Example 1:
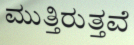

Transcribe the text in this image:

ಮುತ್ತಿರುತ್ತವೆ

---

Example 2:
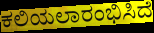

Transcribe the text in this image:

ಕಲಿಯಲಾರಂಭಿಸಿದೆ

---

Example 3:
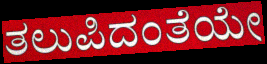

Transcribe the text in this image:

ತಲುಪಿದಂತೆಯೇ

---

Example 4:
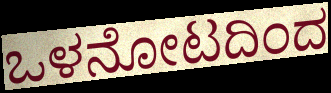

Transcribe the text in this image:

ಒಳನೋಟದಿಂದ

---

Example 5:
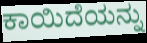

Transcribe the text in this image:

ಕಾಯಿದೆಯನ್ನು